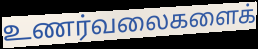
உணர்வலைகளைக்